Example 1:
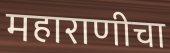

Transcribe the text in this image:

महाराणीचा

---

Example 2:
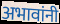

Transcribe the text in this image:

अभावांनी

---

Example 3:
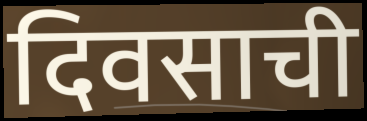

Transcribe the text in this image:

दिवसाची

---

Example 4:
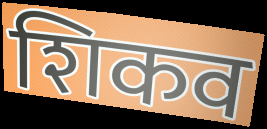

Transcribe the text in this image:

शिकव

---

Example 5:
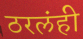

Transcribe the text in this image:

ठरलंही